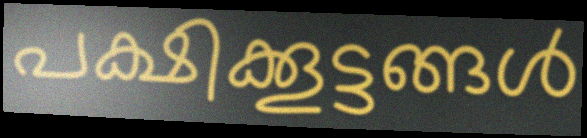
പക്ഷിക്കൂട്ടങ്ങൾ